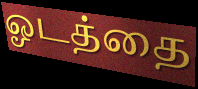
ஓடத்தை